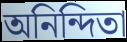
অনিন্দিতা